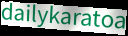
dailykaratoa